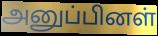
அனுப்பினள்